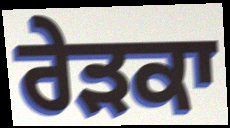
ਰੇੜਕਾ